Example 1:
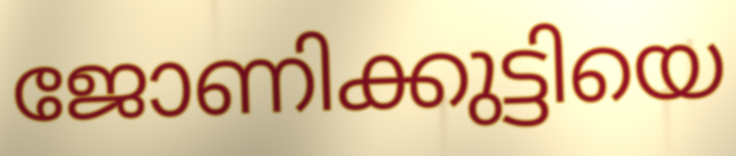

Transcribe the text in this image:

ജോണിക്കുട്ടിയെ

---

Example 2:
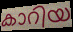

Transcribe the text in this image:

കാറിയ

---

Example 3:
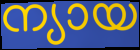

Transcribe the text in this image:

ന്യായ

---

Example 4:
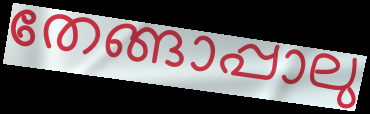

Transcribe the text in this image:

തേങ്ങാപ്പാലു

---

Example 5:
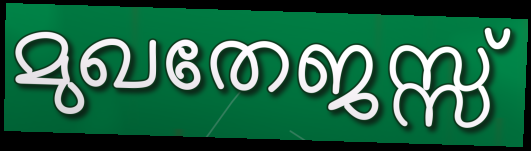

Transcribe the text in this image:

മുഖതേജസ്സ്